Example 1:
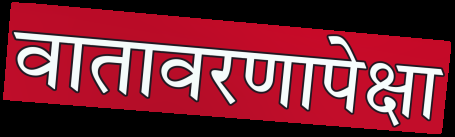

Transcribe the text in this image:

वातावरणापेक्षा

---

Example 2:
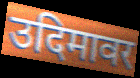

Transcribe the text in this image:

उदिमावर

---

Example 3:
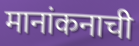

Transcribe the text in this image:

मानांकनाची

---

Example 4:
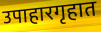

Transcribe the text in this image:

उपाहारगृहात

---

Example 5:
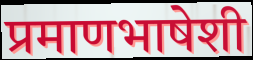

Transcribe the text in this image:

प्रमाणभाषेशी